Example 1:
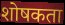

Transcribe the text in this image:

शोषकता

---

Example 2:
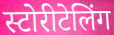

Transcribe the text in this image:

स्टोरीटेलिंग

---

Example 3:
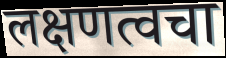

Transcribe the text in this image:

लक्षणत्वचा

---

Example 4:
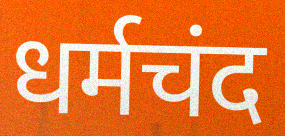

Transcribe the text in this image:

धर्मचंद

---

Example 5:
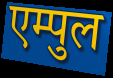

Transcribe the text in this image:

एम्पुल